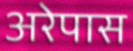
अरेपास